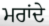
ਮਰਾਂਦੇ